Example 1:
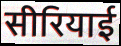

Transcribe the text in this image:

सीरियाई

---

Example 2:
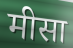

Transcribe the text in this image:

मीसा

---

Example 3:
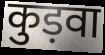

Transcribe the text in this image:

कुड़वा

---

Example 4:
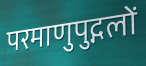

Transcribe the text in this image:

परमाणुपुद्गलों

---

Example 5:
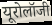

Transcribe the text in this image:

यूरोलॉजी